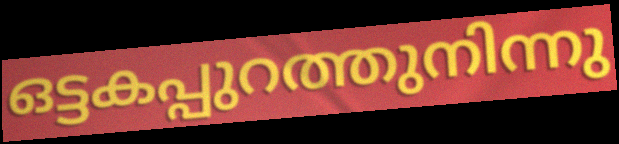
ഒട്ടകപ്പുറത്തുനിന്നു